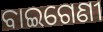
ବାଇଗେଣୀ